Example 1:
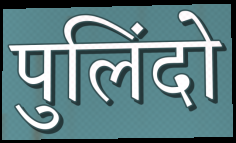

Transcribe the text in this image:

पुलिंदो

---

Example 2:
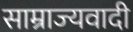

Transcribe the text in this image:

साम्राज्‍यवादी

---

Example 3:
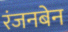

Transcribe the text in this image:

रंजनबेन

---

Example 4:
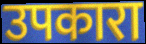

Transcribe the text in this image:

उपकारा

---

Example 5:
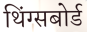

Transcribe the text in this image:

थिंग्सबोर्ड